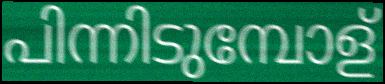
പിന്നിടുമ്പോള്